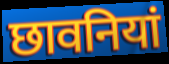
छावनियां